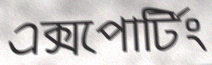
এক্সপোর্টিং